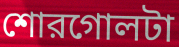
শোরগোলটা